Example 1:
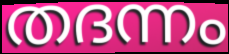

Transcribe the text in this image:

തദന്നം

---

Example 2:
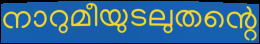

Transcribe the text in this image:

നാറുമീയുടലുതന്റെ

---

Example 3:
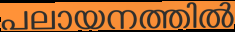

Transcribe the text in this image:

പലായനത്തിൽ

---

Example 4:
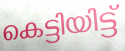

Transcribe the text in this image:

കെട്ടിയിട്ട്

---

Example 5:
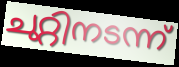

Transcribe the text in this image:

ചുറ്റിനടന്ന്